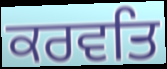
ਕਰਵਤਿ